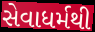
સેવાધર્મથી